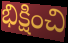
భిక్షించి